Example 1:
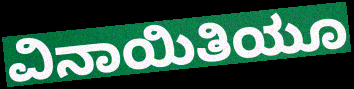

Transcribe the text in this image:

ವಿನಾಯಿತಿಯೂ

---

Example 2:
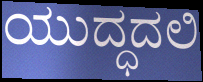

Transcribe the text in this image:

ಯುದ್ಧದಲಿ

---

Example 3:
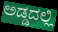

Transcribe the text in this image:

ಅಡ್ಡದಲ್ಲಿ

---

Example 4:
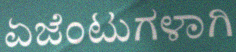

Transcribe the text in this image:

ಏಜೆಂಟುಗಳಾಗಿ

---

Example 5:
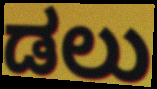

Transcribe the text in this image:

ಡಲು